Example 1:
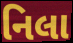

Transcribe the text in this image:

નિલા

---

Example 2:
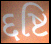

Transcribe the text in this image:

દ્દષ્ટિ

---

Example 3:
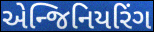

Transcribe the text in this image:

એન્જિનિયરિંગ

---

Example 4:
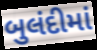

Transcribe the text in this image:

બુલંદીમાં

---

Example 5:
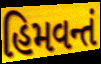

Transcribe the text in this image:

હિમવન્તં